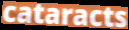
cataracts